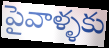
పైవాళ్ళకు